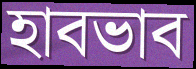
হাবভাব